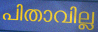
പിതാവില്ല